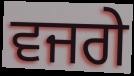
ਵਜਗੇ